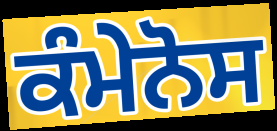
ਕੰਮੇਨੋਸ